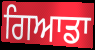
ਗਿਆਡਾ